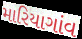
મારિયાગાંવ